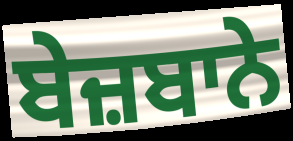
ਬੇਜ਼ਬਾਨੇ